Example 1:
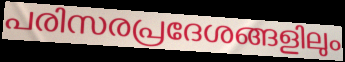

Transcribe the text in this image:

പരിസരപ്രദേശങ്ങളിലും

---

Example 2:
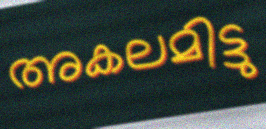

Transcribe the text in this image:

അകലമിട്ടു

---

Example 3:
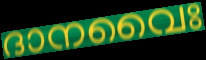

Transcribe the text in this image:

ദാനവൈഃ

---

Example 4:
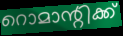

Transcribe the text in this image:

റൊമാന്റിക്ക്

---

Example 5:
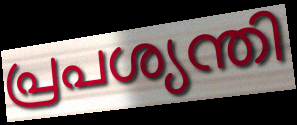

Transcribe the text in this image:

പ്രപശ്യന്തി